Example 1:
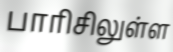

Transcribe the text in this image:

பாரிசிலுள்ள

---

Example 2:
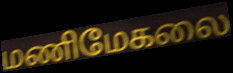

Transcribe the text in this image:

மணிமேகலை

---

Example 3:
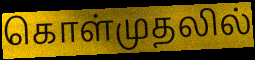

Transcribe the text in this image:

கொள்முதலில்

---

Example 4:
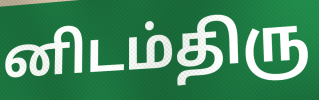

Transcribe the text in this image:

னிடம்திரு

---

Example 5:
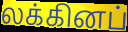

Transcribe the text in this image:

லக்கினப்